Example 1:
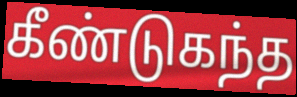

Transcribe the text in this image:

கீண்டுகந்த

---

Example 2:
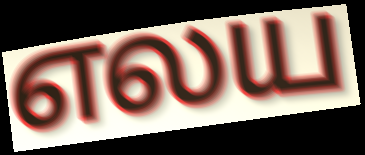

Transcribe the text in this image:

எலய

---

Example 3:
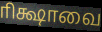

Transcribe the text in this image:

ரிக்ஷாவை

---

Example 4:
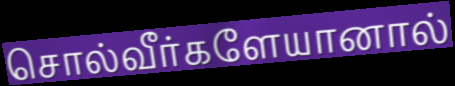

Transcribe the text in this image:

சொல்வீர்களேயானால்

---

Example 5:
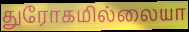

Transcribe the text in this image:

துரோகமில்லையா